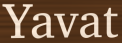
Yavat